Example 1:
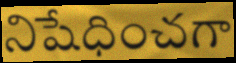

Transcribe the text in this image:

నిషేధించగా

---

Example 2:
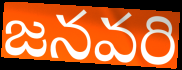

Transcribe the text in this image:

జనవరి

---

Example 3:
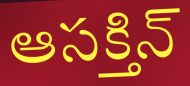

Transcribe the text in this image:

ఆసక్తిన్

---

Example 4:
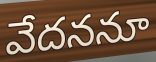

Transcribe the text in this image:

వేదననూ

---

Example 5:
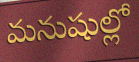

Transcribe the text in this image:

మనుషుల్లో